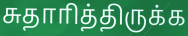
சுதாரித்திருக்க